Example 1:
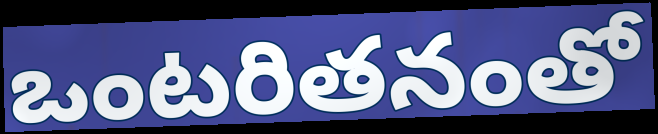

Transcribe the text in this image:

ఒంటరితనంతో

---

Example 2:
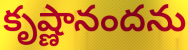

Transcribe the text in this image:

కృష్ణానందను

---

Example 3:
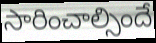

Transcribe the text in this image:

సారించాల్సిందే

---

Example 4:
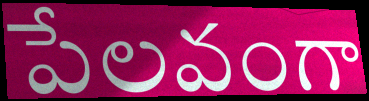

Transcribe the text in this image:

పేలవంగా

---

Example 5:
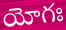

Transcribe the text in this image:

యోగః